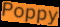
Poppy